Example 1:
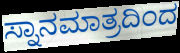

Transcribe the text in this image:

ಸ್ನಾನಮಾತ್ರದಿಂದ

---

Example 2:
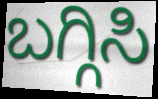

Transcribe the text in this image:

ಬಗ್ಗಿಸಿ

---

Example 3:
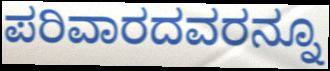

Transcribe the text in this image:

ಪರಿವಾರದವರನ್ನೂ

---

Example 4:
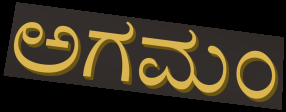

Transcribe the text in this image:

ಅಗಮಂ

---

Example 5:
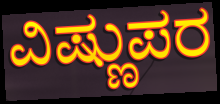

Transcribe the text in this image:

ವಿಷ್ಣುಪರ